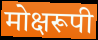
मोक्षरूपी